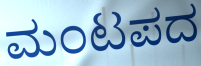
ಮಂಟಪದ